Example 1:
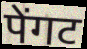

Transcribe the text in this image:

पेंगट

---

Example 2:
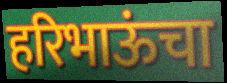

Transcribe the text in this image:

हरिभाऊंचा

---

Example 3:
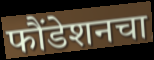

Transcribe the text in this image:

फौंडेशनचा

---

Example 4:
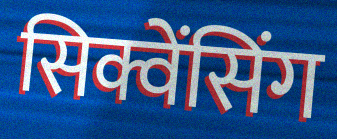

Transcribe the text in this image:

सिक्वेंसिंग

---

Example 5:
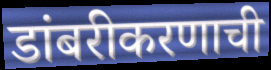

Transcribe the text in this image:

डांबरीकरणाची